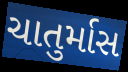
ચાતુર્માસ